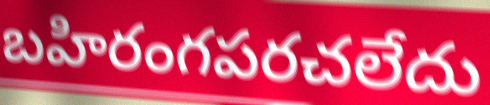
బహిరంగపరచలేదు